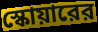
স্কোয়ারের